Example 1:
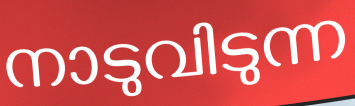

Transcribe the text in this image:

നാടുവിടുന്ന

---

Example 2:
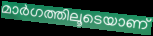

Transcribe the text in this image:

മാർഗത്തിലൂടെയാണ്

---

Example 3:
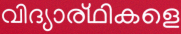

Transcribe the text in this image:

വിദ്യാര്ഥികളെ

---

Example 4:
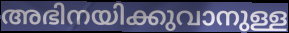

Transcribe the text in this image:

അഭിനയിക്കുവാനുള്ള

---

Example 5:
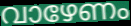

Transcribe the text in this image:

വാഴേണം